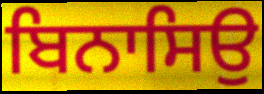
ਬਿਨਾਸਿਉ